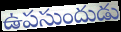
ఉపసుందుడు